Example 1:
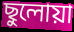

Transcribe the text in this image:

ছুলোয়া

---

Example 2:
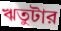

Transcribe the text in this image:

ঋতুটার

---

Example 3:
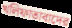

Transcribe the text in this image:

খলিফাতাবাদের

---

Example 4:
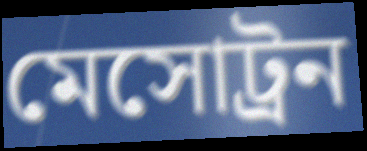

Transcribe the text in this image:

মেসোট্রন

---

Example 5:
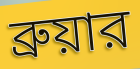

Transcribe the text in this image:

ব্রুয়ার